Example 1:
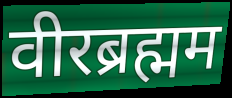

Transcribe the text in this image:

वीरब्रह्मम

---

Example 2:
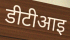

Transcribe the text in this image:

डीटीआइ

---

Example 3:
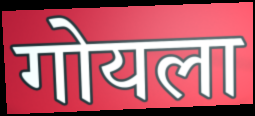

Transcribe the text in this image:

गोयला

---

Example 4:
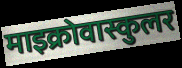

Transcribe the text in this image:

माइक्रोवास्कुलर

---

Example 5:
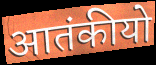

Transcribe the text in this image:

आतंकीयो